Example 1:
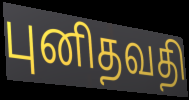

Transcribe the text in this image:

புனிதவதி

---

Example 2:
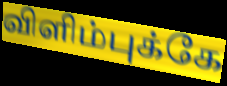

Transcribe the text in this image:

விளிம்புக்கே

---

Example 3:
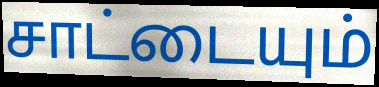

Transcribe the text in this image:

சாட்டையும்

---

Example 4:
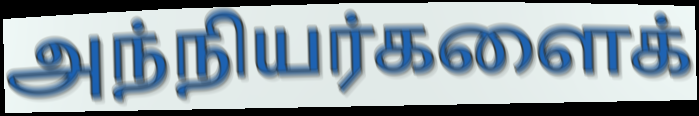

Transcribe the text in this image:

அந்நியர்களைக்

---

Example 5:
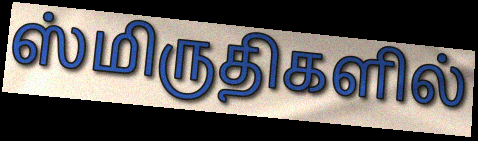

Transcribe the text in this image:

ஸ்மிருதிகளில்